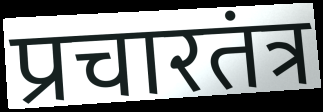
प्रचारतंत्र